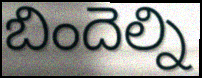
బిందెల్ని